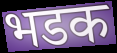
भडक